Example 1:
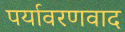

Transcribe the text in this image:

पर्यावरणवाद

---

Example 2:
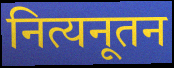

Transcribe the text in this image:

नित्यनूतन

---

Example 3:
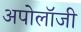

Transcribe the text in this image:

अपोलॉजी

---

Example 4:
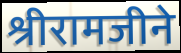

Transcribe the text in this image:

श्रीरामजीने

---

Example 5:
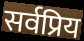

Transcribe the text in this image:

सर्वप्रिय